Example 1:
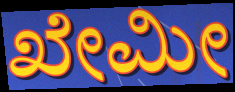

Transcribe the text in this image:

ಖೇಮೀ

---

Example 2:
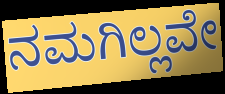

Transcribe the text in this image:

ನಮಗಿಲ್ಲವೇ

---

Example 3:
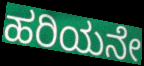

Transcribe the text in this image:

ಹರಿಯನೇ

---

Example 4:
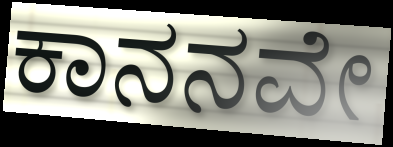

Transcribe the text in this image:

ಕಾನನವೇ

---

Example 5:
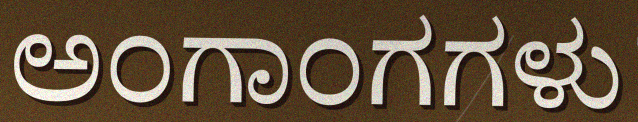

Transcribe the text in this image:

ಅಂಗಾಂಗಗಳು